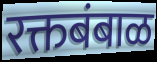
रक्तबंबाळ